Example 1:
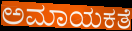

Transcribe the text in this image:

ಅಮಾಯಕತೆ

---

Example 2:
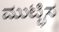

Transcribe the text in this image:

ಮುಟ್ಟಿಸ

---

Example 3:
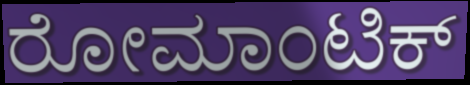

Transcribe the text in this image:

ರೋಮಾಂಟಿಕ್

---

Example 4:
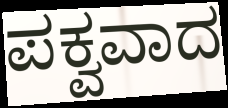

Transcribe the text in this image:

ಪಕ್ವವಾದ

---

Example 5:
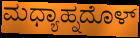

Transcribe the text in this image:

ಮಧ್ಯಾಹ್ನದೊಳ್